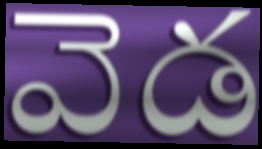
వెడ